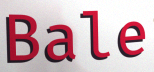
Bale